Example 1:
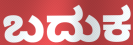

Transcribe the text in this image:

ಬದುಕ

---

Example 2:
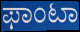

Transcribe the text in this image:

ಫಾಂಟಾ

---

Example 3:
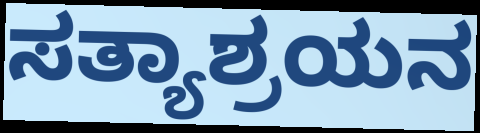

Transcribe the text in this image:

ಸತ್ಯಾಶ್ರಯನ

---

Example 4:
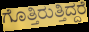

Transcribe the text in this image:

ಗೊತ್ತಿರುತ್ತಿದ್ದರೆ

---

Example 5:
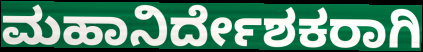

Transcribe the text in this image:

ಮಹಾನಿರ್ದೇಶಕರಾಗಿ